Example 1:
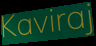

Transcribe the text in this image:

Kaviraj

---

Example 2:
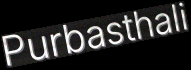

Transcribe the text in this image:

Purbasthali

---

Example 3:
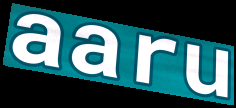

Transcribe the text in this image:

aaru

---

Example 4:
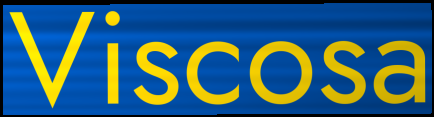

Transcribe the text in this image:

Viscosa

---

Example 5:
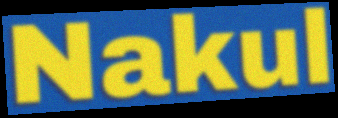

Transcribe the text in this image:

Nakul